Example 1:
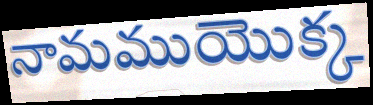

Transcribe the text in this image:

నామముయొక్క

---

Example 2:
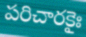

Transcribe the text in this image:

పరిచారకైః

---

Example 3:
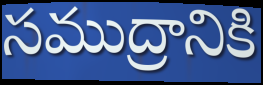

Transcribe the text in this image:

సముద్రానికి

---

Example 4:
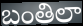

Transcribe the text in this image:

బంతిలా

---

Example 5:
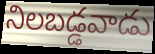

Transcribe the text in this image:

నిలబడ్డవాడు